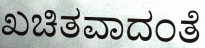
ಖಚಿತವಾದಂತೆ